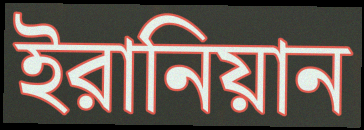
ইরানিয়ান